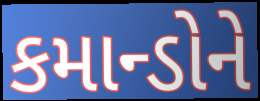
કમાન્ડોને